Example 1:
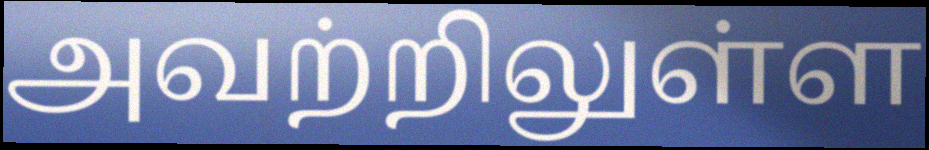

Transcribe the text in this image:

அவற்றிலுள்ள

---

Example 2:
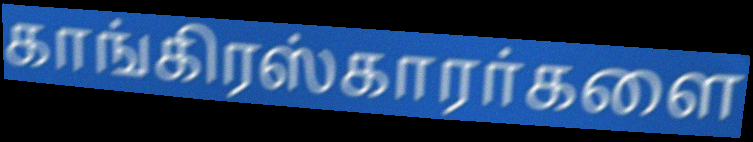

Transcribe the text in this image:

காங்கிரஸ்காரர்களை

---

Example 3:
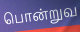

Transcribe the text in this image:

பொன்றுவ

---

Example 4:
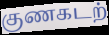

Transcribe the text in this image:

குணகடற்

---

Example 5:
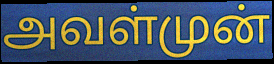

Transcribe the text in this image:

அவள்முன்